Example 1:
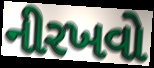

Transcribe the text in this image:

નીરખવો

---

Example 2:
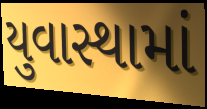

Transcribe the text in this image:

યુવાસ્થામાં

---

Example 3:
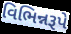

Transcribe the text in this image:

વિભિન્નરૂપે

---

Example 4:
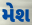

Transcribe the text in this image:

મેશ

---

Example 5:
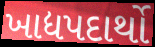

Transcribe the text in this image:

ખાદ્યપદાર્થો